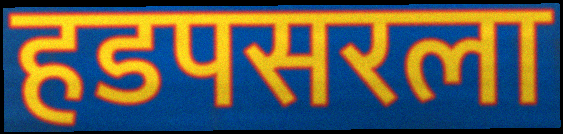
हडपसरला